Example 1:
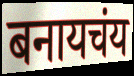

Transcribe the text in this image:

बनायचंय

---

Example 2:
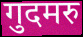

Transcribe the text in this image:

गुदमरु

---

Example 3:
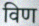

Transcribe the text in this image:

विण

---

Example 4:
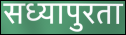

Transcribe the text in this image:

सध्यापुरता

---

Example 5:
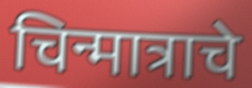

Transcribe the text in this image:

चिन्मात्राचे